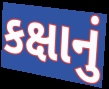
કક્ષાનું